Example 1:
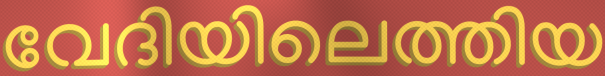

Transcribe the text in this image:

വേദിയിലെത്തിയ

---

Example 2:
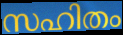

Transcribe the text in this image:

സഹിതം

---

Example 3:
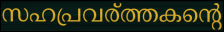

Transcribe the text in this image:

സഹപ്രവര്ത്തകന്റെ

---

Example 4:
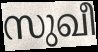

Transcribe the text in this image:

സുഖീ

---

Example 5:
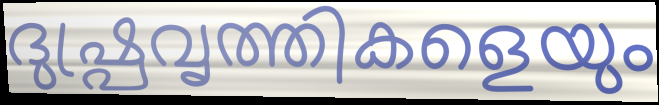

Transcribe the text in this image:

ദുഷ്പ്രവൃത്തികളെയും